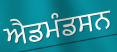
ਐਡਮੰਡਸਨ